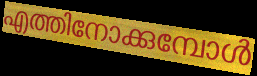
എത്തിനോക്കുമ്പോൾ